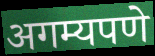
अगम्यपणे